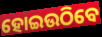
ହୋଇଉଠିବେ